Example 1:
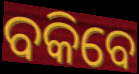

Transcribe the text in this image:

ବକିବେ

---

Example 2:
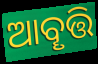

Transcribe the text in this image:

ଆବୄତ୍ତି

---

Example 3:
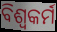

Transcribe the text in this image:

ବିଶ୍ୱକର୍ମ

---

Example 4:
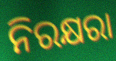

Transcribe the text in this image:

ନିରକ୍ଷରା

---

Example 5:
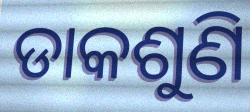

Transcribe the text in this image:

ଡାକଶୁଣି